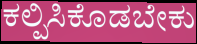
ಕಲ್ಪಿಸಿಕೊಡಬೇಕು